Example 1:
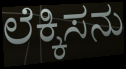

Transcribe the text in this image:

ಲೆಕ್ಕಿಸನು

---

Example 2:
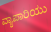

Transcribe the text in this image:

ವ್ಯಾಪಾರಿಯು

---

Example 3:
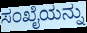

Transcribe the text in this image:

ಸಂಖೈಯನ್ನು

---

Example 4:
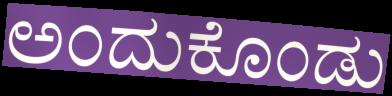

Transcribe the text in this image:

ಅಂದುಕೊಂಡು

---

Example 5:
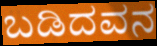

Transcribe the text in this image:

ಬಡಿದವನ